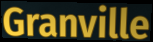
Granville